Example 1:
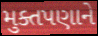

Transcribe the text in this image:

મુક્તપણાને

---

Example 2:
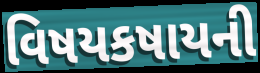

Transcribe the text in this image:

વિષયકષાયની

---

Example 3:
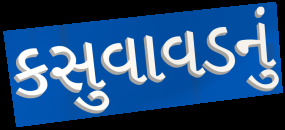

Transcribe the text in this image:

કસુવાવડનું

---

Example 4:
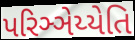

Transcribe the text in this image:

પરિઞ્ઞેય્યેતિ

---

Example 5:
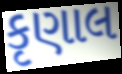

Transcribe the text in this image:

કૃણાલ